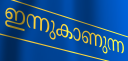
ഇന്നുകാണുന്ന